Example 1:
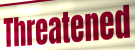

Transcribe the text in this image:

Threatened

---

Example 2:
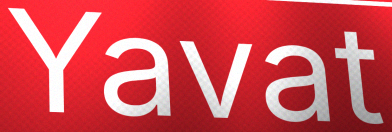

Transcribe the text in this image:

Yavat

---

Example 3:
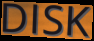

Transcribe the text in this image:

DISK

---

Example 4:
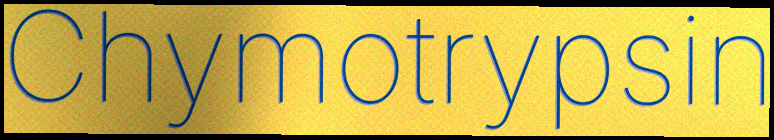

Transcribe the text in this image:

Chymotrypsin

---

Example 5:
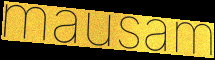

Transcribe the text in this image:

mausam